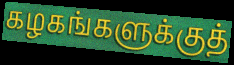
கழகங்களுக்குத்